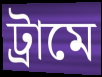
ট্রামে